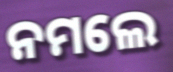
ନମଲେ